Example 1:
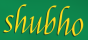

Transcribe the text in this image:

shubho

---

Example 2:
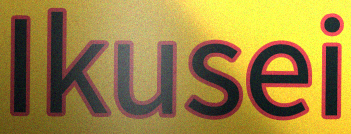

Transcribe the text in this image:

Ikusei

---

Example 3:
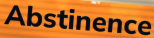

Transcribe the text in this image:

Abstinence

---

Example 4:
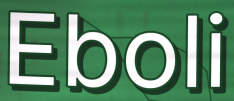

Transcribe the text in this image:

Eboli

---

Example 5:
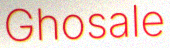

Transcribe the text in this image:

Ghosale